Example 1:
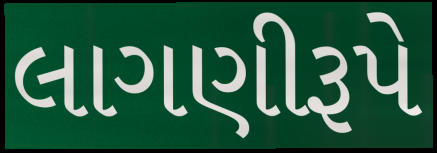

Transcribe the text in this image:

લાગણીરૂપે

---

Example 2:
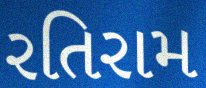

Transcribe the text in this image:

રતિરામ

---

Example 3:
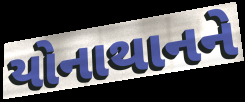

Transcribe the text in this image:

યોનાથાનને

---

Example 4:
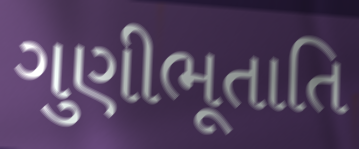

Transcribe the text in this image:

ગુણીભૂતાતિ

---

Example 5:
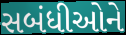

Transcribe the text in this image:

સબંધીઓને